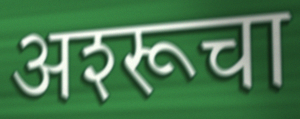
अश्रूचा